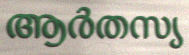
ആർതസ്യ